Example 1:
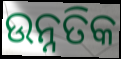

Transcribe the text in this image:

ଉନ୍ନତିକ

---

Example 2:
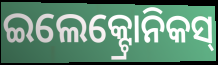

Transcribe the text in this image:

ଇଲେକ୍ଟ୍ରୋନିକସ୍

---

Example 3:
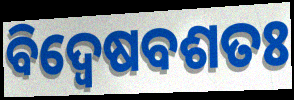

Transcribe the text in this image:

ବିଦ୍ୱେଷବଶତଃ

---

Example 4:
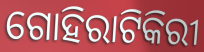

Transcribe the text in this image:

ଗୋହିରାଟିକିରୀ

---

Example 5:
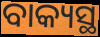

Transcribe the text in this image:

ବାକ୍ୟସ୍ଥ